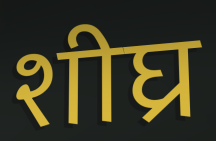
शीघ्र